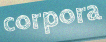
corpora